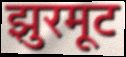
झुरमूट